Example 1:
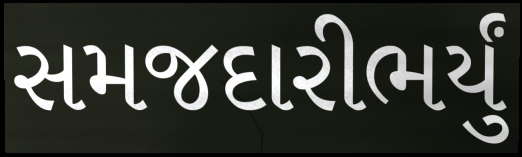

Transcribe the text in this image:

સમજદારીભર્યું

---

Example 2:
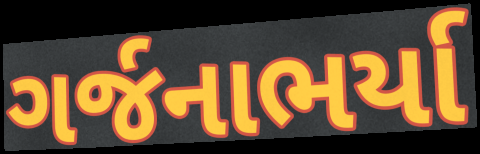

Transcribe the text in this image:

ગર્જનાભર્યા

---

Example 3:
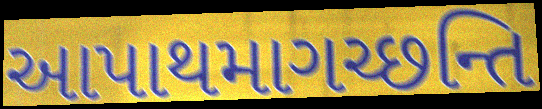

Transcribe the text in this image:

આપાથમાગચ્છન્તિ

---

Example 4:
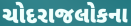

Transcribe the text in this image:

ચોદરાજલોકના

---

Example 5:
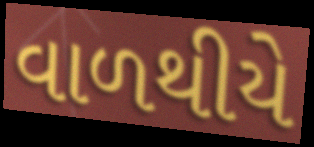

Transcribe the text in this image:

વાળથીયે